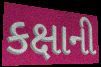
કક્ષાની